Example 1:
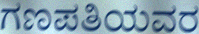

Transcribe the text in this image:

ಗಣಪತಿಯವರ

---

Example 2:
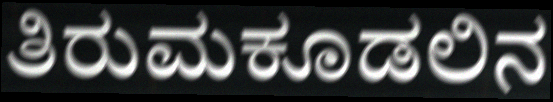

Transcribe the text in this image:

ತಿರುಮಕೂಡಲಿನ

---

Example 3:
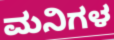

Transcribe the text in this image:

ಮನಿಗಳ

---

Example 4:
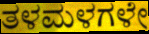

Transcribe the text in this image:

ತಳಮಳಗಳೇ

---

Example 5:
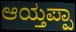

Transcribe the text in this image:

ಆಯ್ತಪ್ಪಾ